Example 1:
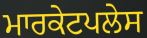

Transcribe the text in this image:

ਮਾਰਕੇਟਪਲੇਸ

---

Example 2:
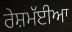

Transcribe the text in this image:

ਰੇਸ਼ਮੱਈਆ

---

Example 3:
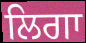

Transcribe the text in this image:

ਲਿਗਾ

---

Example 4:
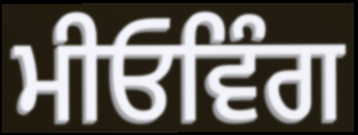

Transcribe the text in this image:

ਮੀਓਵਿੰਗ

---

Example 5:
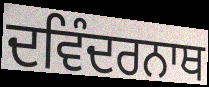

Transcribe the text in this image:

ਦਵਿੰਦਰਨਾਥ